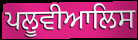
ਪਲੂਵੀਆਲਿਸ